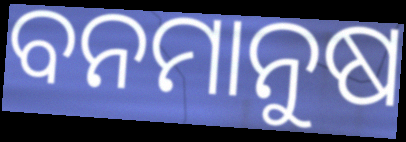
ବନମାନୁଷ